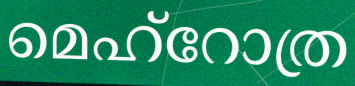
മെഹ്റോത്ര